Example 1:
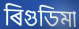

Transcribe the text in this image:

ৰিগুডিমা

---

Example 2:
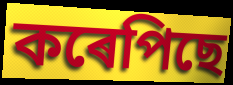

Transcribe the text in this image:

কৰেপিছে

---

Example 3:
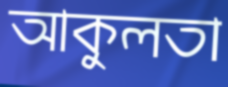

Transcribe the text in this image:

আকুলতা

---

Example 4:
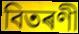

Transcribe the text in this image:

বিতৰণী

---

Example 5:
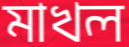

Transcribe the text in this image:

মাখল